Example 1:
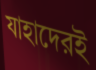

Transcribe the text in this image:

যাহাদেরই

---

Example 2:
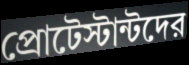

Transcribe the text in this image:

প্রোটেস্টান্টদের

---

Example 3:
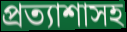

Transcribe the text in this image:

প্রত্যাশাসহ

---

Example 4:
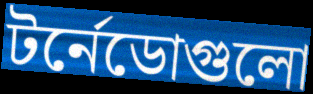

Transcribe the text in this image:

টর্নেডোগুলো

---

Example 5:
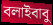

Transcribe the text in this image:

বলাইবাবু